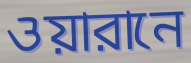
ওয়ারানে